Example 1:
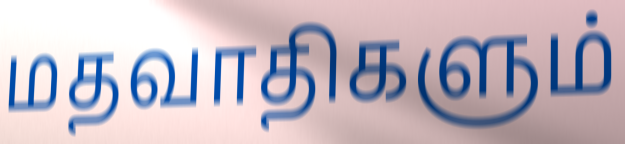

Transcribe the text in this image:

மதவாதிகளும்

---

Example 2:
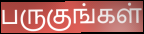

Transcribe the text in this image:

பருகுங்கள்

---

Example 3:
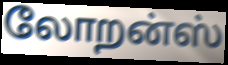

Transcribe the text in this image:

லோறன்ஸ்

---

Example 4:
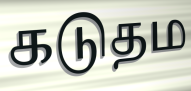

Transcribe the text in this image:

கடுதம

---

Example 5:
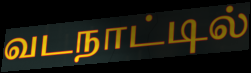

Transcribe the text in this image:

வடநாட்டில்